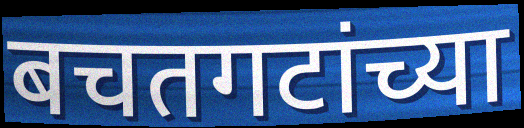
बचतगटांच्या